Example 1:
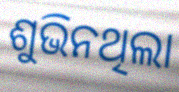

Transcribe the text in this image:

ଶୁଭିନଥିଲା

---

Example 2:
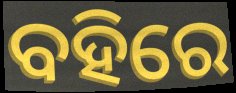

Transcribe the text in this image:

ବହିରେ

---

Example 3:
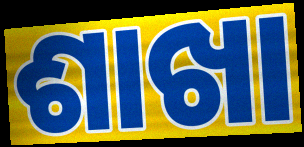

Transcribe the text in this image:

ଶାଖା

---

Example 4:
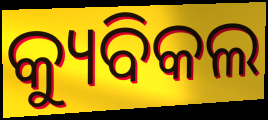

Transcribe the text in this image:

କ୍ୟୁବିକଲ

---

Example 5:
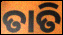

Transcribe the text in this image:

ତାତି